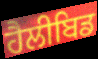
ਹੈਲੀਬਿਡ